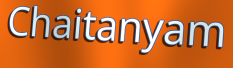
Chaitanyam